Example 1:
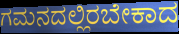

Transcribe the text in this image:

ಗಮನದಲ್ಲಿರಬೇಕಾದ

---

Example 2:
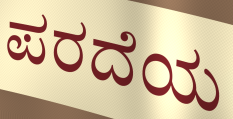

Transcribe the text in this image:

ಪರದೆಯ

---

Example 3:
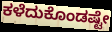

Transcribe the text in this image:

ಕಳೆದುಕೊಂಡಷ್ಟೇ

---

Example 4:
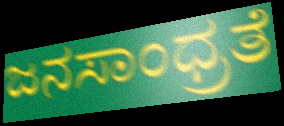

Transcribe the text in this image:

ಜನಸಾಂಧ್ರತೆ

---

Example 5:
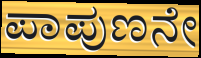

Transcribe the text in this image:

ಪಾಪುಣನೇ